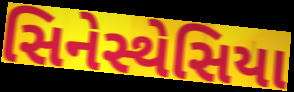
સિનેસ્થેસિયા